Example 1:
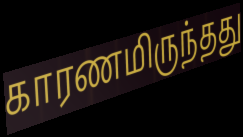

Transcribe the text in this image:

காரணமிருந்தது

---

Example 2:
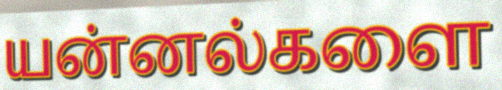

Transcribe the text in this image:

யன்னல்களை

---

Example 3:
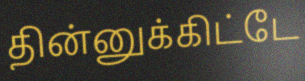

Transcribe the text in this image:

தின்னுக்கிட்டே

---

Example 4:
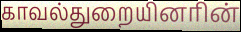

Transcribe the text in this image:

காவல்துறையினரின்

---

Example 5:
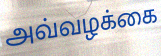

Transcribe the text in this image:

அவ்வழக்கை